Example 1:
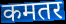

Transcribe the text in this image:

कमतर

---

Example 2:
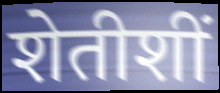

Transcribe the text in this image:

शेतीशीं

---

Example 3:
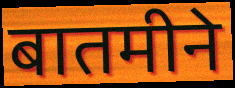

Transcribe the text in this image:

बातमीने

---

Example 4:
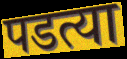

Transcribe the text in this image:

पडत्या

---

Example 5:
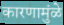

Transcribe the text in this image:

कारणामुंळे